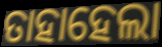
ତାହାହେଲା